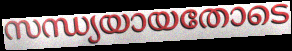
സന്ധ്യയായതോടെ